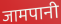
जामपानी